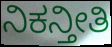
ನಿಕನ್ತೀತಿ